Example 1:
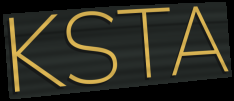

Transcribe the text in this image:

KSTA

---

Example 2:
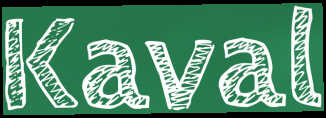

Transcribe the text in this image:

Kaval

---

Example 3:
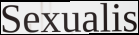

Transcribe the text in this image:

Sexualis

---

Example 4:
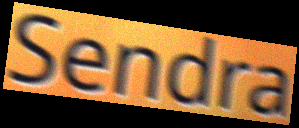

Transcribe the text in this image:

Sendra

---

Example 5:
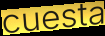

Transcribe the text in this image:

cuesta